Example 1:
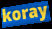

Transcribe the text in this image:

koray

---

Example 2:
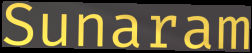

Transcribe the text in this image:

Sunaram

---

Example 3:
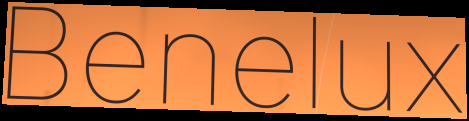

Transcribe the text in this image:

Benelux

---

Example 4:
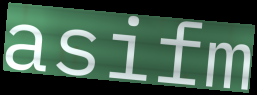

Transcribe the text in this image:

asifm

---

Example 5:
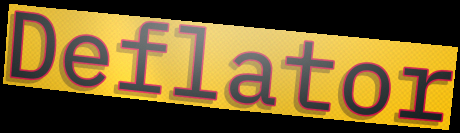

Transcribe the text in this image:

Deflator